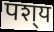
पश्य